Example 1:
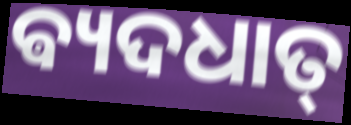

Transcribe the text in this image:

ଵ୍ୟଦଧାତ୍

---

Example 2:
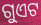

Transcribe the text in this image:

ଗୁଏଟ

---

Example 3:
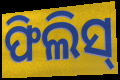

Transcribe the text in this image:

ଫିଲିସ୍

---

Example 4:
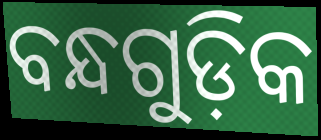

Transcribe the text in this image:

ବନ୍ଧଗୁଡ଼ିକ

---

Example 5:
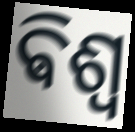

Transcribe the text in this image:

ଵିଶ୍ୱ